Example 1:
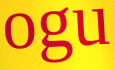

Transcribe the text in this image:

ogu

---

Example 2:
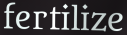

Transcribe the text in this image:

fertilize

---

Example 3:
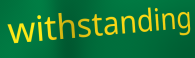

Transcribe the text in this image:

withstanding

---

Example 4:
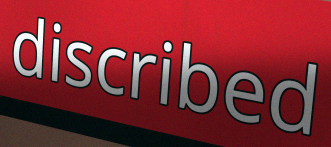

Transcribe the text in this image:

discribed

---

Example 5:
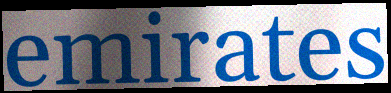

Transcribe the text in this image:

emirates